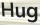
Hug